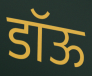
डॉऊ